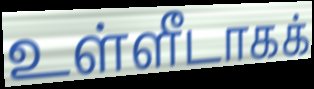
உள்ளீடாகக்